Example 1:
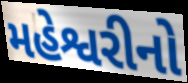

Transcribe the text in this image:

મહેશ્વરીનો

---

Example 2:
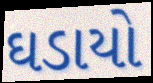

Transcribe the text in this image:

ઘડાયો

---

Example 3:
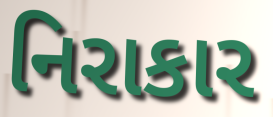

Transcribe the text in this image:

નિરાકાર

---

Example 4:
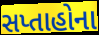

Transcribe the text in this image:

સપ્તાહોના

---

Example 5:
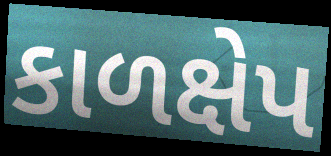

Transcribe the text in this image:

કાળક્ષેપ